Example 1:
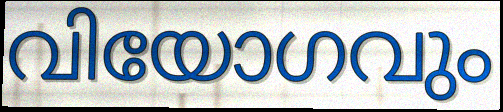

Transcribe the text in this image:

വിയോഗവും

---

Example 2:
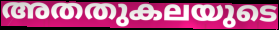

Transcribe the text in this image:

അതതുകലയുടെ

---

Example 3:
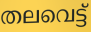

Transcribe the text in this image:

തലവെട്ട്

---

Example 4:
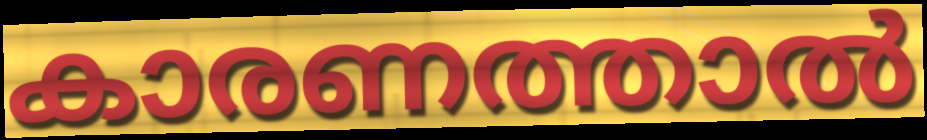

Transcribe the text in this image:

കാരണത്താൽ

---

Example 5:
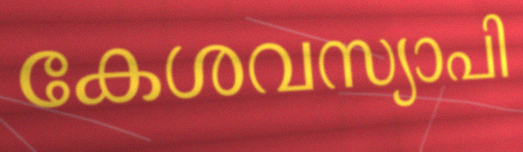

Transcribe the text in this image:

കേശവസ്യാപി